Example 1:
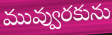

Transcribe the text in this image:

మువ్వురకును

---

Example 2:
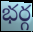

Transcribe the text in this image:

భర్గ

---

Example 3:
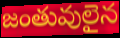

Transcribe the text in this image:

జంతువులైన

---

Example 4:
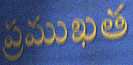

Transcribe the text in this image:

ప్రముఖత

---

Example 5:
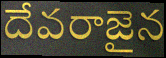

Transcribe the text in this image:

దేవరాజైన